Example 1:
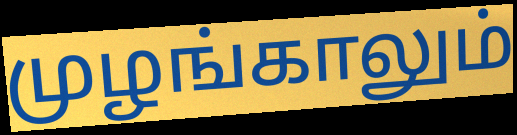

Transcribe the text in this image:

முழங்காலும்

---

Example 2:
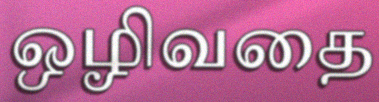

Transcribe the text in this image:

ஒழிவதை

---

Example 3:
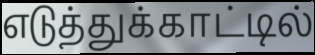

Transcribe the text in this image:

எடுத்துக்காட்டில்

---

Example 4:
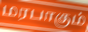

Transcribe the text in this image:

மரபாகும்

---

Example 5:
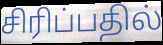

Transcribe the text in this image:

சிரிப்பதில்